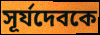
সূর্যদেবকে